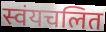
स्वंयचलित